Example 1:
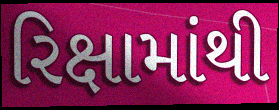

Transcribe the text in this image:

રિક્ષામાંથી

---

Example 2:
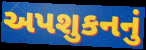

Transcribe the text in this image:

અપશુકનનું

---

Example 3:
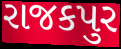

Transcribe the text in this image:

રાજકપુર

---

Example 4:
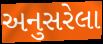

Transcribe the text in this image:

અનુસરેલા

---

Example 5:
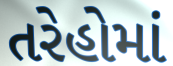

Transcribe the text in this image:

તરેહોમાં